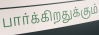
பார்க்கிறதுக்கும்